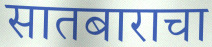
सातबाराचा